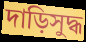
দাড়িসুদ্ধ